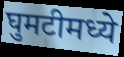
घुमटीमध्ये